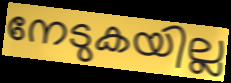
നേടുകയില്ല